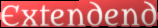
Extendend